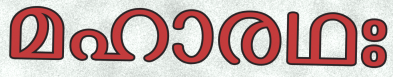
മഹാരഥഃ